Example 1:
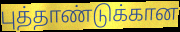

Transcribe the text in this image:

புத்தாண்டுக்கான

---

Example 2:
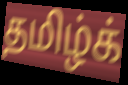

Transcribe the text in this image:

தமிழ்க்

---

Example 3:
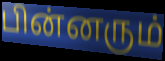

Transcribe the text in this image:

பின்னரும்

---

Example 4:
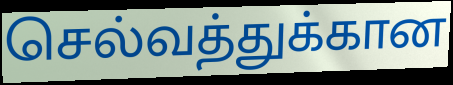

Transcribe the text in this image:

செல்வத்துக்கான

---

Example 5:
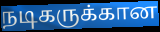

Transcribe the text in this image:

நடிகருக்கான